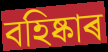
বহিষ্কাৰ